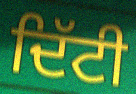
ਦਿੱਟੀ